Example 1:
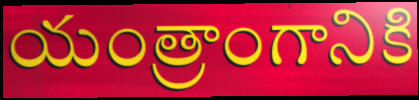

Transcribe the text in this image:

యంత్రాంగానికి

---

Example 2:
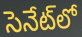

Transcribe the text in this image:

సెనేట్‌లో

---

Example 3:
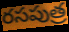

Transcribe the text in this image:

రసపుత్ర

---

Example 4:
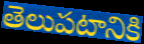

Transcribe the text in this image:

తెలుపటానికి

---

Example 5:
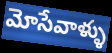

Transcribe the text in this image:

మోసేవాళ్ళు